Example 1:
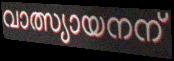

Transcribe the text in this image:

വാത്സ്യായനന്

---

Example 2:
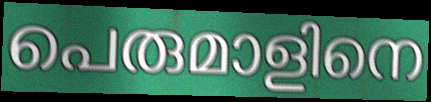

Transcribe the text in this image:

പെരുമാളിനെ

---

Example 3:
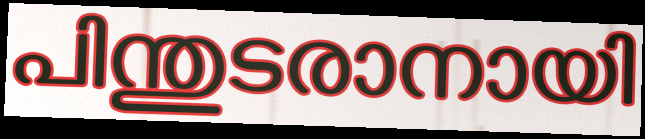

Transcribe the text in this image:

പിന്തുടരാനായി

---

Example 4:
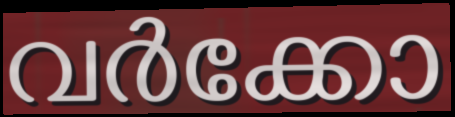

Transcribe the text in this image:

വർക്കോ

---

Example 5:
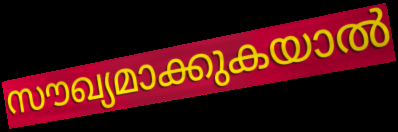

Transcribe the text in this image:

സൗഖ്യമാക്കുകയാൽ